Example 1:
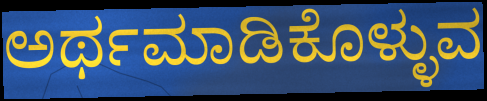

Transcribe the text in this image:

ಅರ್ಥಮಾಡಿಕೊಳ್ಳುವ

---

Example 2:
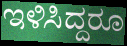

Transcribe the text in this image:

ಇಳಿಸಿದ್ದರೂ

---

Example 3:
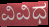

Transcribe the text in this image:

ವಿವಿಧ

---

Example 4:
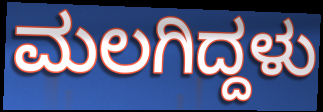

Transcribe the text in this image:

ಮಲಗಿದ್ದಳು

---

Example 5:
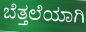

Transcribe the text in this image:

ಬೆತ್ತಲೆಯಾಗಿ